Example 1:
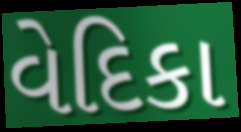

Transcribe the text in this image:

વેદિકા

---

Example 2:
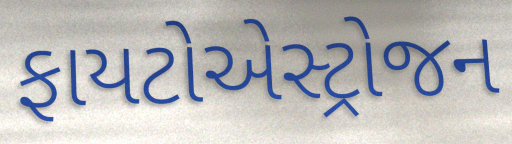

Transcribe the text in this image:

ફાયટોએસ્ટ્રોજન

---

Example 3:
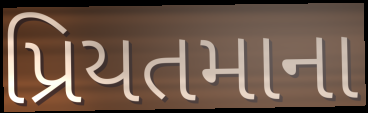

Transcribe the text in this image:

પ્રિયતમાના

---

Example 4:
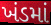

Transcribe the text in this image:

ખંડમાં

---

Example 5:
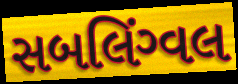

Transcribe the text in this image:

સબલિંગ્વલ